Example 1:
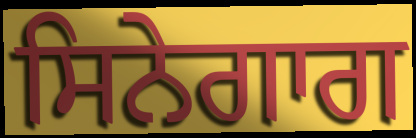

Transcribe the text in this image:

ਸਿਨੇਗਾਗ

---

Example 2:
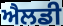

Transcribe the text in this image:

ਐਲਡੀ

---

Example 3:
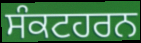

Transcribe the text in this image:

ਸੰਕਟਹਰਨ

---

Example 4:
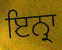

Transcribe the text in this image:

ਇਨ੍ਰਾ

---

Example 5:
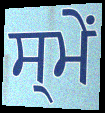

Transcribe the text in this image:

ਸ੍ਮੇਂ